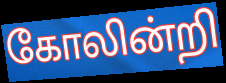
கோலின்றி